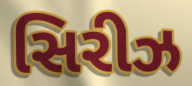
સિરીઝ